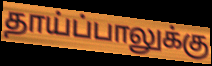
தாய்ப்பாலுக்கு